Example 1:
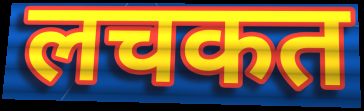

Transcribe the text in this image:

लचकत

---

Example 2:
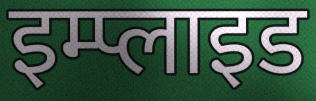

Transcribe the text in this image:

इम्प्लाइड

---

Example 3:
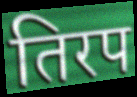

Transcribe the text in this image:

तिरप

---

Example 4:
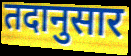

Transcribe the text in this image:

तदानुसार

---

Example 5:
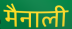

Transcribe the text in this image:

मैनाली